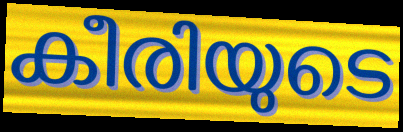
കീരിയുടെ